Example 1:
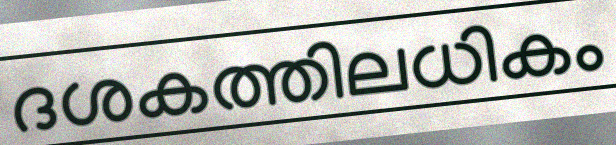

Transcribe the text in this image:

ദശകത്തിലധികം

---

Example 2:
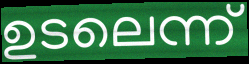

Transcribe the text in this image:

ഉടലെന്ന്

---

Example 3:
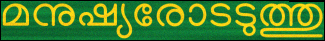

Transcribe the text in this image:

മനുഷ്യരോടടുത്തു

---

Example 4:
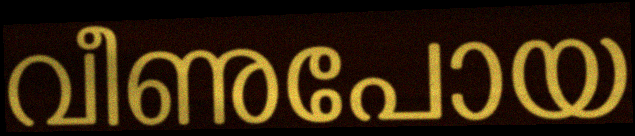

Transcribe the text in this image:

വീണുപോയ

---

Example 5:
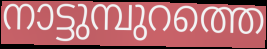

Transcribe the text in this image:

നാട്ടുമ്പുറത്തെ